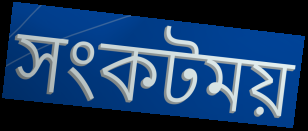
সংকটময়